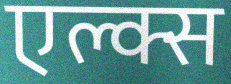
एल्क्स